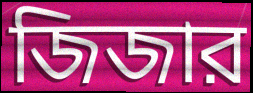
জিজার